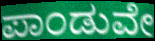
ಪಾಂಡುವೇ